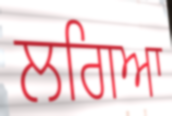
ਲਗਿਆ